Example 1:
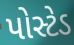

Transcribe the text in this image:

પોસ્ટેડ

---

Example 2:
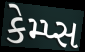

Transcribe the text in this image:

કેમ્પ્સ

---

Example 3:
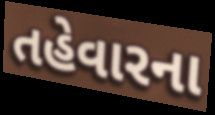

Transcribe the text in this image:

તહેવારના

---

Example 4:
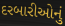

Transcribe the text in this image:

દરબારીઓનું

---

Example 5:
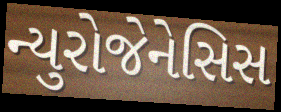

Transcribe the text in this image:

ન્યુરોજેનેસિસ